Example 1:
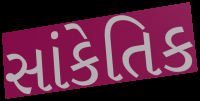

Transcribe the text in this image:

સાંકેતિક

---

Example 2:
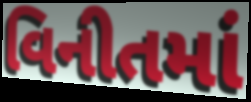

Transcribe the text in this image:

વિનીતમાં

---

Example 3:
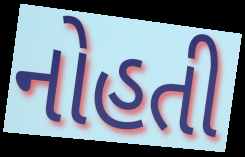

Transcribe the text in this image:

નોહતી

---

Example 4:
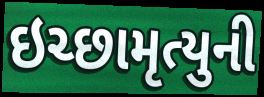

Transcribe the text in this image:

ઇચ્છામૃત્યુની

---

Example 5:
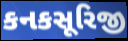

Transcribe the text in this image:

કનકસૂરિજી